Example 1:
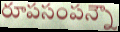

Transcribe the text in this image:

రూపసంపన్నౌ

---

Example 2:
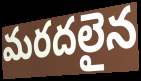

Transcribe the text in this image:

మరదలైన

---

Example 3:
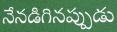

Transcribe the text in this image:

నేనడిగినప్పుడు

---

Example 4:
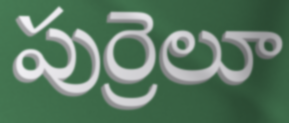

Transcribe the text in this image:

పుర్రెలూ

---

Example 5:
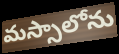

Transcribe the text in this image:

మస్సాలోను